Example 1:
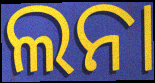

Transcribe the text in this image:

ଲନା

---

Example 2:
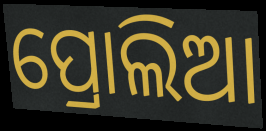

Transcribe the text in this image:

ପ୍ରୋଲିଆ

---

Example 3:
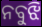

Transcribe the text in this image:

ନବୁଝି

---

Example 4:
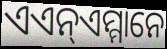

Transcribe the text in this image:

ଏଏନ୍ଏମ୍ମାନେ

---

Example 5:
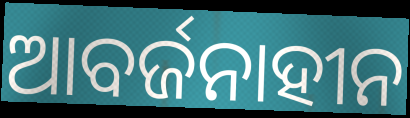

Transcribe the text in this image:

ଆବର୍ଜନାହୀନ